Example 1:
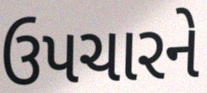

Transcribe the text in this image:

ઉપચારને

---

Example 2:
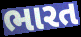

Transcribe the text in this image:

ભારત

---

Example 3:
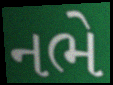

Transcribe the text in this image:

નભે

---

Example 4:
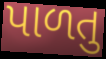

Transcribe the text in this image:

પાળતુ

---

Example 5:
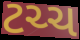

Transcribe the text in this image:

ટચ્ચ